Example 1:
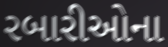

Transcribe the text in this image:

રબારીઓના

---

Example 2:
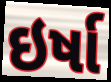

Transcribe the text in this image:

ઇર્ષા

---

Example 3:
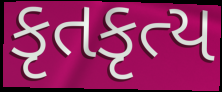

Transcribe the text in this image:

કૃતકૃત્ય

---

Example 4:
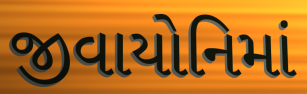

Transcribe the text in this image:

જીવાયોનિમાં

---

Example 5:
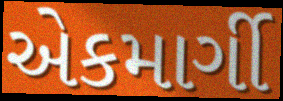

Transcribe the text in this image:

એકમાર્ગી